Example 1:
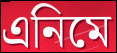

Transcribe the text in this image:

এনিমে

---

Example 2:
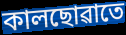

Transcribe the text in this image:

কালছোৱাতে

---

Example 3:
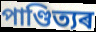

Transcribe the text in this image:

পাণ্ডিত্যৰ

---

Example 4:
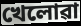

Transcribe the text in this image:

খেলোৱা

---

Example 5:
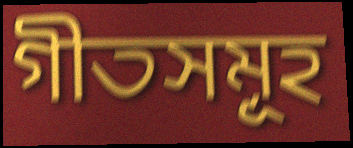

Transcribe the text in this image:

গীতসমূহ